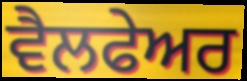
ਵੈਲਫੇਅਰ